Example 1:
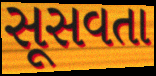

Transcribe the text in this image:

સૂસવતા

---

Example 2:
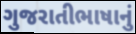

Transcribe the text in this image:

ગુજરાતીભાષાનું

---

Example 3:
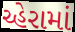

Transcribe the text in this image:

ચ્હેરામાં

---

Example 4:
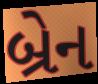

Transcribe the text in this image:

બ્રેન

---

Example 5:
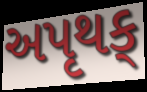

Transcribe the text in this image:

અપૃથક્